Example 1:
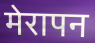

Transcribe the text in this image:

मेरापन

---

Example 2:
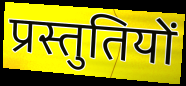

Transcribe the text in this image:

प्रस्तुतियों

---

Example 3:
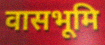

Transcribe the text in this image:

वासभूमि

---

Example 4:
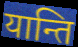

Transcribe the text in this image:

यान्ति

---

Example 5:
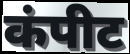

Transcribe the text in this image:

कंपीट